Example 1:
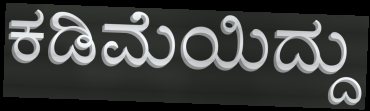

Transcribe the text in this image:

ಕಡಿಮೆಯಿದ್ದು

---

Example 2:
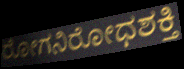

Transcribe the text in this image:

ರೋಗನಿರೋಧಶಕ್ತಿ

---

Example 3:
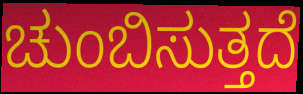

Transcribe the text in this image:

ಚುಂಬಿಸುತ್ತದೆ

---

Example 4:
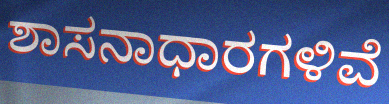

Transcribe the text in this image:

ಶಾಸನಾಧಾರಗಳಿವೆ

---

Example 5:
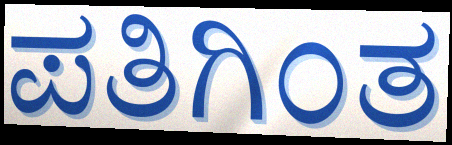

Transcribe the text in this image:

ಪತಿಗಿಂತ